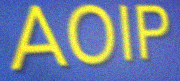
AOIP